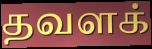
தவளக்